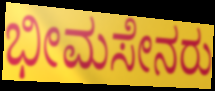
ಭೀಮಸೇನರು